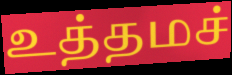
உத்தமச்